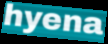
hyena